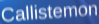
Callistemon